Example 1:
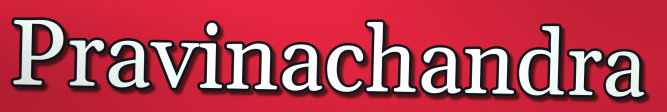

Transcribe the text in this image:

Pravinachandra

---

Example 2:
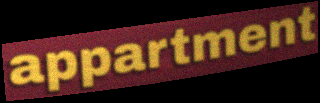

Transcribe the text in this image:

appartment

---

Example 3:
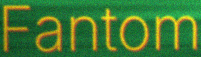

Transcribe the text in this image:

Fantom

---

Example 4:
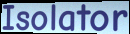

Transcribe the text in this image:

Isolator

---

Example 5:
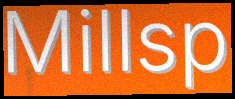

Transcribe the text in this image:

Millsp